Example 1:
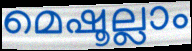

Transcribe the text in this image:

മെഷൂല്ലാം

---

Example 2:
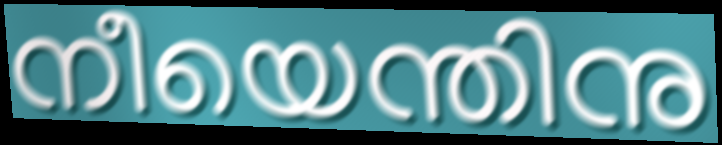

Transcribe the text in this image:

നീയെന്തിനു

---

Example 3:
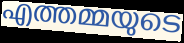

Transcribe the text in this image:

എത്തമ്മയുടെ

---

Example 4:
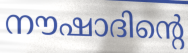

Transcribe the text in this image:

നൗഷാദിന്റെ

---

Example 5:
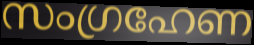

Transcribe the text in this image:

സംഗ്രഹേണ